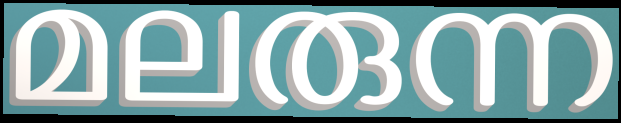
മലരുന്ന